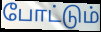
போட்டும்